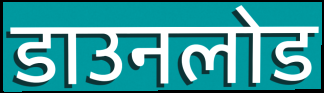
डाउनलोड